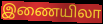
இணையிலா